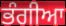
ਭੰਗੀਆ